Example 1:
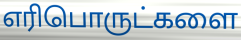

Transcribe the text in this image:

எரிபொருட்களை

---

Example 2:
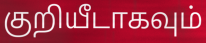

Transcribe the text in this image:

குறியீடாகவும்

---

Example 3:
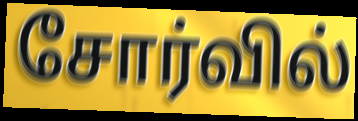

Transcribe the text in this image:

சோர்வில்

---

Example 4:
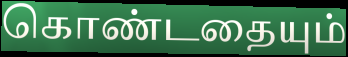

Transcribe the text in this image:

கொண்டதையும்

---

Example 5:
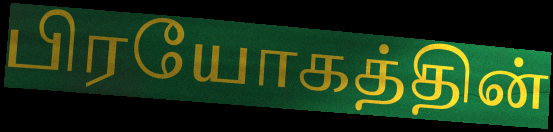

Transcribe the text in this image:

பிரயோகத்தின்